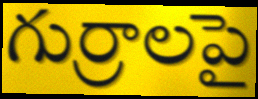
గుర్రాలపై